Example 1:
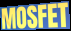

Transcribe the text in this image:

MOSFET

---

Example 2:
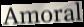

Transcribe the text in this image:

Amoral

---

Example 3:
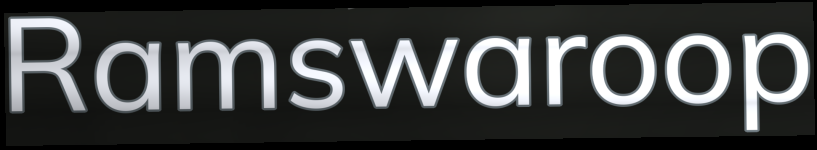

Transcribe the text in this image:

Ramswaroop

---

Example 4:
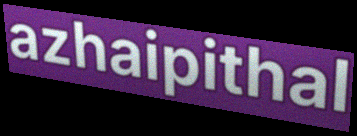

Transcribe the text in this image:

azhaipithal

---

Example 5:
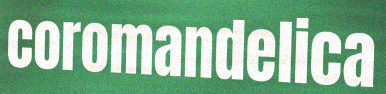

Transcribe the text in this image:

coromandelica